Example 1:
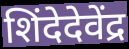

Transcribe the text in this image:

शिंदेदेवेंद्र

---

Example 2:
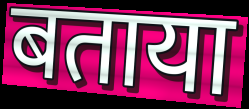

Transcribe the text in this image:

बताया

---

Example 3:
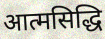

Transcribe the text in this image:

आत्मसिद्धि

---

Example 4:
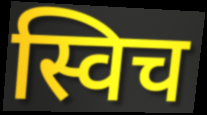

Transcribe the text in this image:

स्विच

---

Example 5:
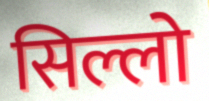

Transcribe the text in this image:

सिल्लो